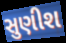
સુણીશ